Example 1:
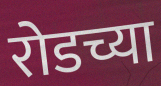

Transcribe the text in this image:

रोडच्या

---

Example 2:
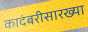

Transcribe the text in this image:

कादंबरीसारख्या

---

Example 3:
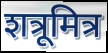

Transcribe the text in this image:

शत्रूमित्र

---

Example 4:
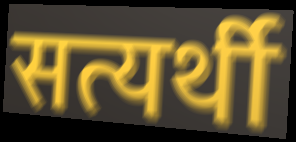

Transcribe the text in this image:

सत्यर्थी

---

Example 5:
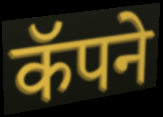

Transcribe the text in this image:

कॅपने